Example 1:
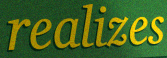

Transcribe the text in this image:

realizes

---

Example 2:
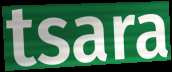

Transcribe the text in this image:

tsara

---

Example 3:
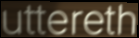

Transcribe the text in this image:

uttereth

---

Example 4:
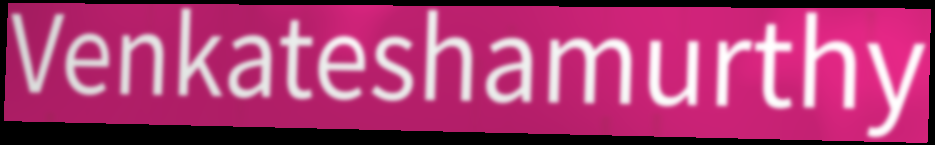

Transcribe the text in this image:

Venkateshamurthy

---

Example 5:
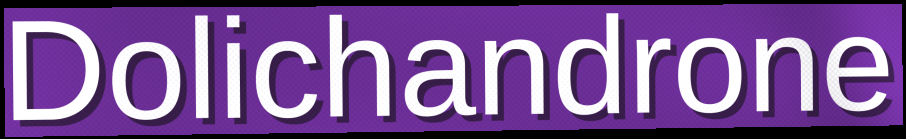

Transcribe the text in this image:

Dolichandrone